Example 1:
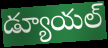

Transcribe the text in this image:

డ్యూయల్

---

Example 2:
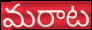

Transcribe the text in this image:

మరాట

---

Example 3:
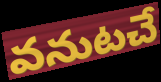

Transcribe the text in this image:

వనుటచే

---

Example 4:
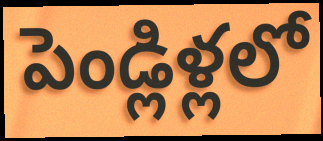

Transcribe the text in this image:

పెండ్లిళ్లలో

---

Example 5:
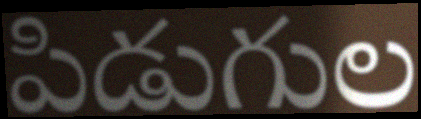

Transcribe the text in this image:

పిడుగుల